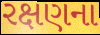
રક્ષણના